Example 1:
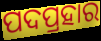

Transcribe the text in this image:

ପଦପ୍ରହାର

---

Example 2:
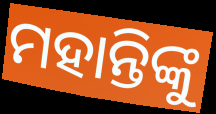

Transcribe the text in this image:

ମହାନ୍ତିଙ୍କୁ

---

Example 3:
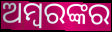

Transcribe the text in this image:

ଅମ୍ବରଙ୍କର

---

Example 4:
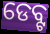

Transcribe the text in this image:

ଡେବ୍ଟ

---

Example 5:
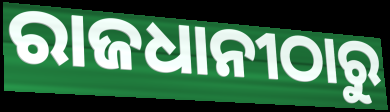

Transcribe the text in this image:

ରାଜଧାନୀଠାରୁ